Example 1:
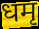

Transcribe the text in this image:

धमृ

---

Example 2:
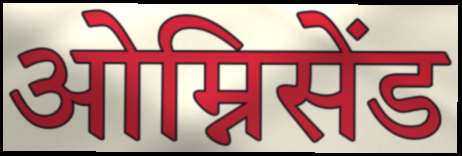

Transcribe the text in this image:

ओम्निसेंड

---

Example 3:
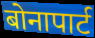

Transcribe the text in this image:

बोनापार्ट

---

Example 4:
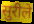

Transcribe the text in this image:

सुरीले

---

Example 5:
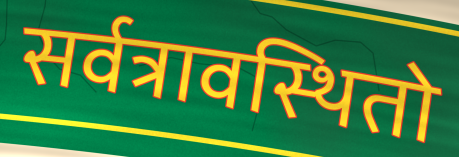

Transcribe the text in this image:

सर्वत्रावस्थितो